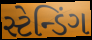
સ્ટેન્ડિંગ